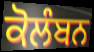
ਕੋਲੰਬਨ